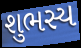
શુભસ્ય